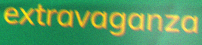
extravaganza